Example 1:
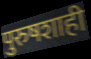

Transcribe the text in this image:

पुरुषशाही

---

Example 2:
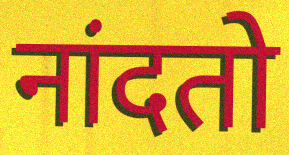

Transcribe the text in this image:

नांदतो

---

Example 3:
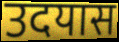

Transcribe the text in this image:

उदयास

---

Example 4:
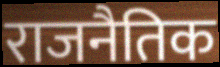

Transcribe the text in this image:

राजनैतिक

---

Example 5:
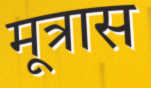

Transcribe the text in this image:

मूत्रास